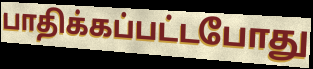
பாதிக்கப்பட்டபோது